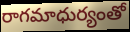
రాగమాధుర్యంతో